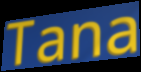
Tana